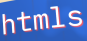
htmls